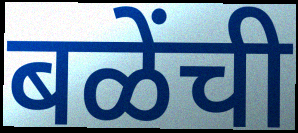
बळेंची